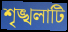
শৃঙ্খলাটি